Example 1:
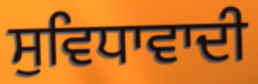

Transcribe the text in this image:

ਸੁਵਿਧਾਵਾਦੀ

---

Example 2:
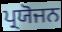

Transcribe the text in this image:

ਪ੍ਰਯੋਜਨ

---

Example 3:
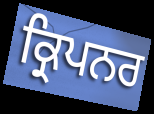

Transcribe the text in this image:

ਕ੍ਰਿਪਨਰ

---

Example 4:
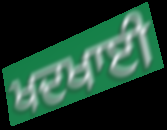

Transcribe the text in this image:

ਖਦਖਾਈ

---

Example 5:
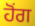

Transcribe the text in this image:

ਹੋਂਗ